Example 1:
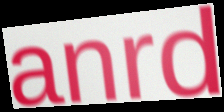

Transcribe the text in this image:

anrd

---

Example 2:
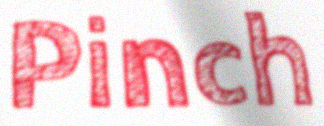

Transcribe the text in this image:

Pinch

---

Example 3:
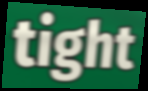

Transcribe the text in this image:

tight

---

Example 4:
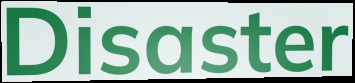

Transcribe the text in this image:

Disaster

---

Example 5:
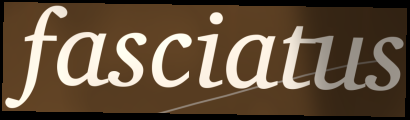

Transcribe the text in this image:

fasciatus